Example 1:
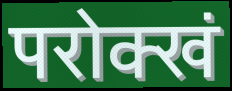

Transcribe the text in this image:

परोक्खं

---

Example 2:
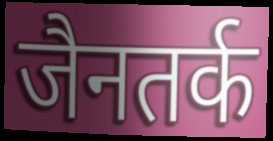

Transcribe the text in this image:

जैनतर्क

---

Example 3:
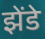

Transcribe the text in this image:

झेंडे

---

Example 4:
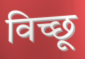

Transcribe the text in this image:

विच्छू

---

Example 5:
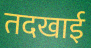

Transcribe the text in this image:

तदखाई